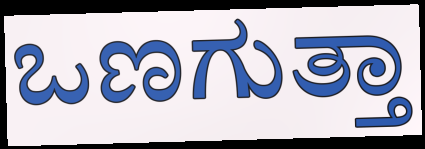
ಒಣಗುತ್ತಾ